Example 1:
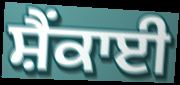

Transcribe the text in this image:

ਸ਼ੈਂਕਾਈ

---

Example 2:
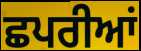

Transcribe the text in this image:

ਛਪਰੀਆਂ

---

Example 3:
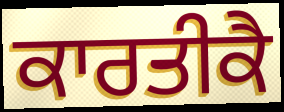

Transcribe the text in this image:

ਕਾਰਤੀਕੈ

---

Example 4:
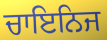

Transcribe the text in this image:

ਚਾਇਨਿਜ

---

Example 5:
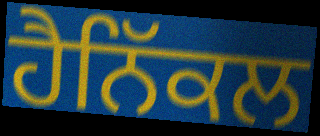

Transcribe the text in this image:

ਹੈਨਿੱਕਲ